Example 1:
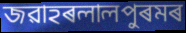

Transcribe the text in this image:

জৱাহৰলালপুৰমৰ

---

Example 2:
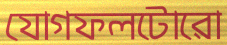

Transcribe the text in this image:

যোগফলটোৱো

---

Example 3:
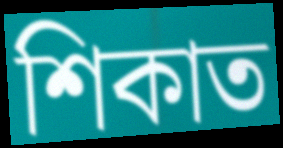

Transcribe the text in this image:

শিকাত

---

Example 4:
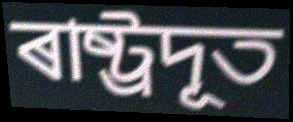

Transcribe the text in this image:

ৰাষ্ট্ৰদূত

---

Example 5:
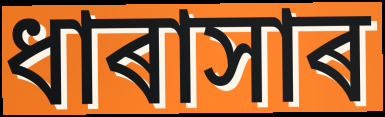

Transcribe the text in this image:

ধাৰাসাৰ